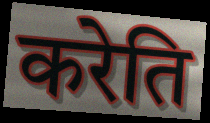
करेति